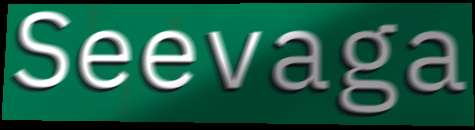
Seevaga